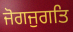
ਜੋਗਜੁਗਤਿ